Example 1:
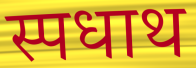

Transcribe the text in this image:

स्पधाथ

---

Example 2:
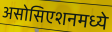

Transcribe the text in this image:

असोसिएशनमध्ये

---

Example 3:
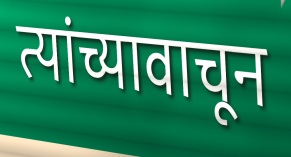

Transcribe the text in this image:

त्यांच्यावाचून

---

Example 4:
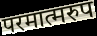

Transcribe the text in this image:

परमात्मरुप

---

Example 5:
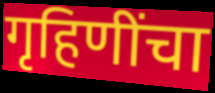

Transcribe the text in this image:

गृहिणींचा